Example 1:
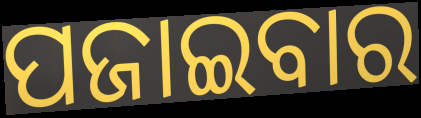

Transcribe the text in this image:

ପଜାଇବାର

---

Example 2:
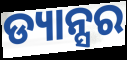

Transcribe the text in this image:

ଡ୍ୟାନ୍ସର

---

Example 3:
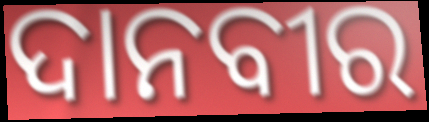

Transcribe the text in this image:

ଦାନବୀର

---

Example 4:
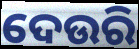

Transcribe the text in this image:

ଦେଉରି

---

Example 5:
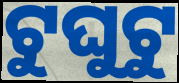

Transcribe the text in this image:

ଟୁଘୁଟୁ